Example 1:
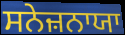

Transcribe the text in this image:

ਸਨੇਜ਼ਨਾਯਾ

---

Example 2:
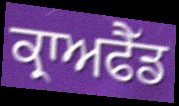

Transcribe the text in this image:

ਕ੍ਰਾਅਫੈੱਡ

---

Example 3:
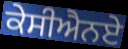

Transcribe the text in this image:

ਕੇਸੀਐਨਏ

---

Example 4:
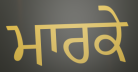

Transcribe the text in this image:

ਮਾਰਕੇ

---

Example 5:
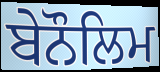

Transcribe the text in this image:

ਬੇਨੌਲਿਮ